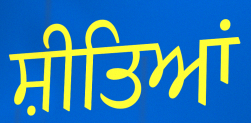
ਸ਼ੀਤਿਆਂ